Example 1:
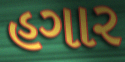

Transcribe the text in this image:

હગાર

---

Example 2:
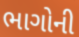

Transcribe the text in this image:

ભાગોની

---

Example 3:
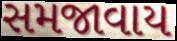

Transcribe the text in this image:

સમજાવાય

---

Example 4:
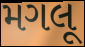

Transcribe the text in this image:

મગલૂ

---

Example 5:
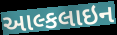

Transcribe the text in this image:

આલ્કલાઇન